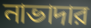
নাভাদার